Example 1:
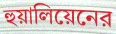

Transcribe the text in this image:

হুয়ালিয়েনের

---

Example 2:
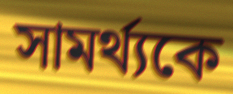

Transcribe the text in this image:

সামর্থ্যকে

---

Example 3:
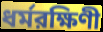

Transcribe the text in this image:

ধর্মরক্ষিণী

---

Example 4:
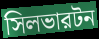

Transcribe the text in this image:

সিলভারটন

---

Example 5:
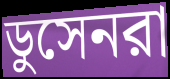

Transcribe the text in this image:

ডুসেনরা